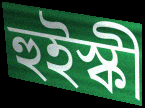
হুইস্কী